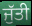
ਜੁੱਤੀ